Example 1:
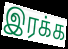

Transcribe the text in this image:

இரக்க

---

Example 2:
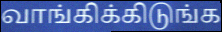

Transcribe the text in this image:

வாங்கிக்கிடுங்க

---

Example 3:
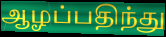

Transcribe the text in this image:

ஆழப்பதிந்து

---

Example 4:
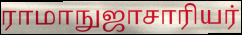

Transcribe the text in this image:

ராமாநுஜாசாரியர்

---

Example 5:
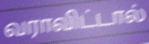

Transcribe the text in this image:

வராவிட்டால்